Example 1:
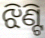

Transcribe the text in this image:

ଝିଣ୍ଟି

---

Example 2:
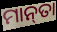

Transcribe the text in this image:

ମାନ୍‌ତା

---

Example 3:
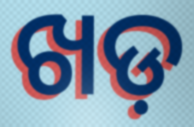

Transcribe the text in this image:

ଖଡ଼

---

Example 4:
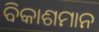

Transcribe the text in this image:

ବିକାଶମାନ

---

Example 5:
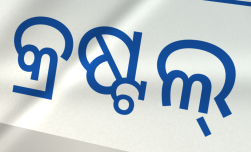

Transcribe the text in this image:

କ୍ରଷ୍ଟଲ୍